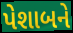
પેશાબને